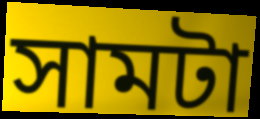
সামটা